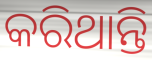
କରିଥାନ୍ତି